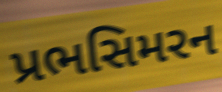
પ્રભસિમરન